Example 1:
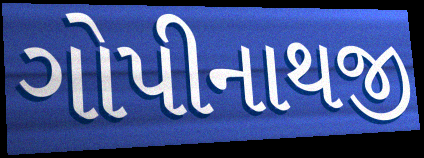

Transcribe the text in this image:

ગોપીનાથજી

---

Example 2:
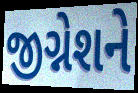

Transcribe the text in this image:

જીગ્નેશને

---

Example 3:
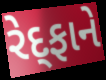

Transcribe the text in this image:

રેદ્ફાને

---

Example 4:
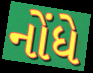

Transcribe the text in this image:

નોંધે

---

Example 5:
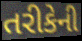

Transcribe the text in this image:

તરીકેની